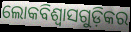
ଲୋକବିଶ୍ଵାସଗୁଡ଼ିକର